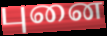
புனை